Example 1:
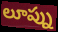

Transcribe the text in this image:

లూప్ను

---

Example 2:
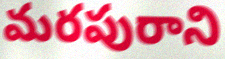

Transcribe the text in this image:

మరపురాని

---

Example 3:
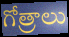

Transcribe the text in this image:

గోత్రాలు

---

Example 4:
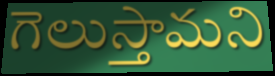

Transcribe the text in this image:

గెలుస్తామని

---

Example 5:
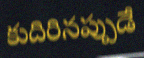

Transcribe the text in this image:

కుదిరినప్పుడే